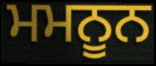
ਮਮਨੂਨ